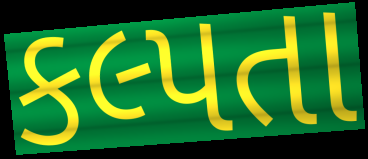
કલ્પતા